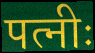
पत्नीः